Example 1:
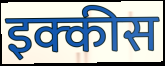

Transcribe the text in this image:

इक्‍कीस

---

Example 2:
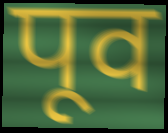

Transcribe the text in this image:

पूव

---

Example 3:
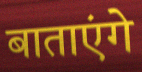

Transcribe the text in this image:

बाताएंगे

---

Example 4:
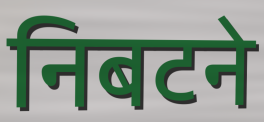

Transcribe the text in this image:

निबटने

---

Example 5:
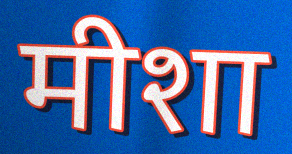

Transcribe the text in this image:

मीशा